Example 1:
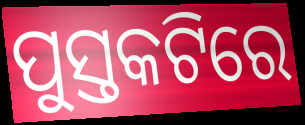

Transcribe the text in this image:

ପୁସ୍ତକଟିରେ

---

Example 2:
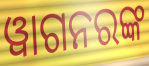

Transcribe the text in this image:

ୱାଗନରଙ୍କ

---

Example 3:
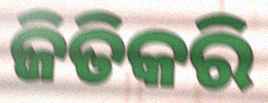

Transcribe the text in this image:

ଜିତିକରି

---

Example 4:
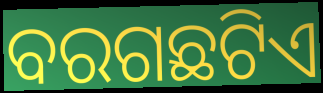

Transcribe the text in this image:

ବରଗଛଟିଏ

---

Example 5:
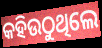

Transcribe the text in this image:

କହିଉଠୁଥିଲେ